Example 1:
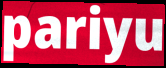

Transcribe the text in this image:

pariyu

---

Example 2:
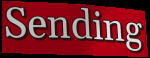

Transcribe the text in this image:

Sending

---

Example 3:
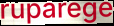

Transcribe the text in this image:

ruparege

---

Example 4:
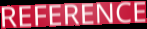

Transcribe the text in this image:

REFERENCE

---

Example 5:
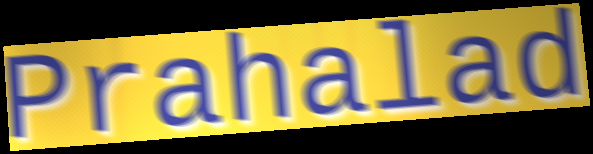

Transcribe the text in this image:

Prahalad